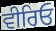
ਵੀਰਿਓ